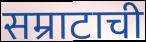
सम्राटाची